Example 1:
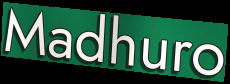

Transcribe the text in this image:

Madhuro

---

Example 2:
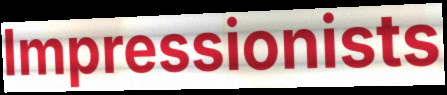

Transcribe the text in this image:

Impressionists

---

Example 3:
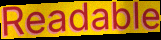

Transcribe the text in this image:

Readable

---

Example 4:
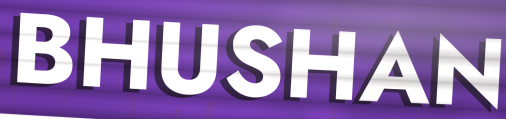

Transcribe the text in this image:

BHUSHAN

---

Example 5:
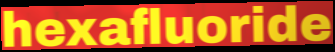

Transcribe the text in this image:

hexafluoride